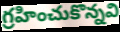
గ్రహించుకొన్నవి